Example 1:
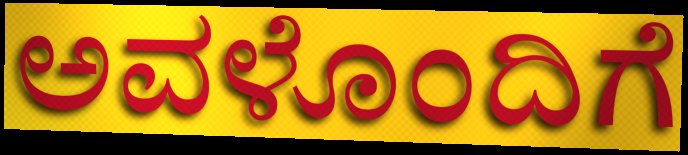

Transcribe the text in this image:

ಅವಳೊಂದಿಗೆ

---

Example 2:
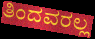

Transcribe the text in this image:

ತಿಂದವರಲ್ಲ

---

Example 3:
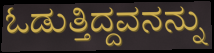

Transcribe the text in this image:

ಓಡುತ್ತಿದ್ದವನನ್ನು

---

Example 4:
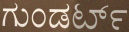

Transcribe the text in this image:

ಗುಂಡರ್ಟ್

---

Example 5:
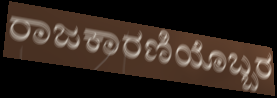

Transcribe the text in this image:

ರಾಜಕಾರಣಿಯೊಬ್ಬರ